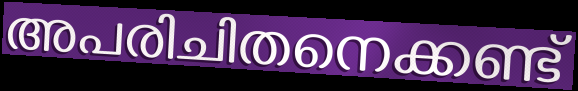
അപരിചിതനെക്കണ്ട്